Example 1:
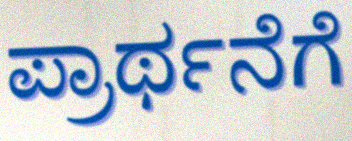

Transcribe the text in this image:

ಪ್ರಾರ್ಥನೆಗೆ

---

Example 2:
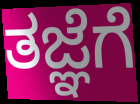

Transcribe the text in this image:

ತಜ್ಞೆಗೆ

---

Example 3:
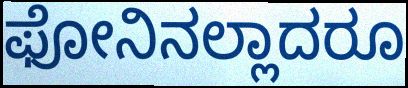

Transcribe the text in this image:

ಫೋನಿನಲ್ಲಾದರೂ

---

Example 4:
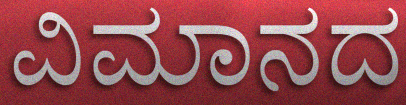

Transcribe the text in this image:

ವಿಮಾನದ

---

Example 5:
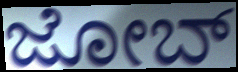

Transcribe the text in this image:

ಜೋಬ್